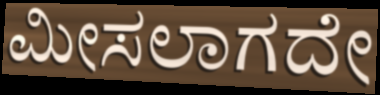
ಮೀಸಲಾಗದೇ